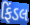
ફિંડલ